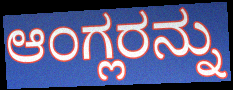
ಆಂಗ್ಲರನ್ನು